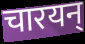
चारयन्